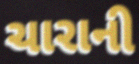
ચારાની